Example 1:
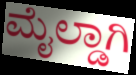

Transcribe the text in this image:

ಮೈಲ್ಡಾಗಿ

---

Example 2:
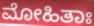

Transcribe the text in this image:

ಮೋಹಿತಾಃ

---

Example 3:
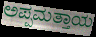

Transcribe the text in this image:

ಅಪ್ಪಮತ್ತಾಯ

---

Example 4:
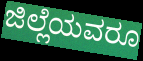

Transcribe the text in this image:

ಜಿಲ್ಲೆಯವರೂ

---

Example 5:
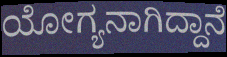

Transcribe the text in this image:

ಯೋಗ್ಯನಾಗಿದ್ದಾನೆ